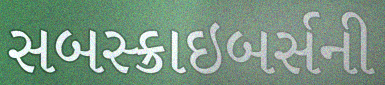
સબસ્ક્રાઇબર્સની